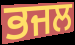
ਭਜਲ